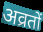
अव्रतों